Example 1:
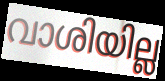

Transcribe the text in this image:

വാശിയില്ല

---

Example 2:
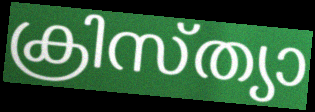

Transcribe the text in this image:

ക്രിസ്‌ത്യാ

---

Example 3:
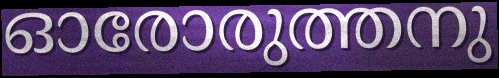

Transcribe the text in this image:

ഓരോരുത്തനു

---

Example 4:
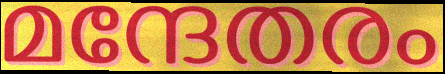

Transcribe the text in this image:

മന്ദേതരം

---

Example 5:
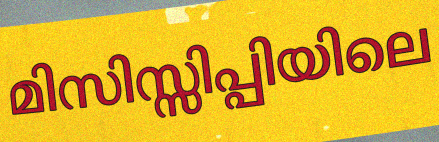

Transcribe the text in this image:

മിസിസ്സിപ്പിയിലെ